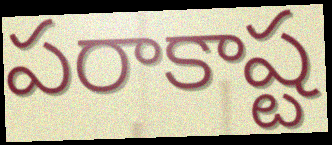
పరాకాష్ట